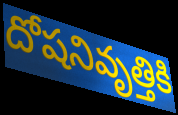
దోషనివృత్తికి